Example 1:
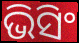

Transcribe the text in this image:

ଭିସିଂ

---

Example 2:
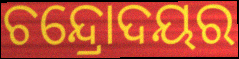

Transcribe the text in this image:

ଚନ୍ଦ୍ରୋଦୟର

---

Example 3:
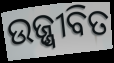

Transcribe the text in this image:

ଉଜ୍ଜ୍ୱୀବିତ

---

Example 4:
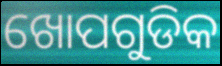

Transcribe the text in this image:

ଖୋପଗୁଡିକ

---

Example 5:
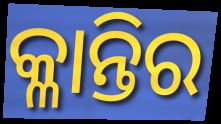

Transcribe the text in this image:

କ୍ଳାନ୍ତିର